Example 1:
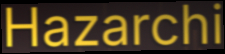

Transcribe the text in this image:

Hazarchi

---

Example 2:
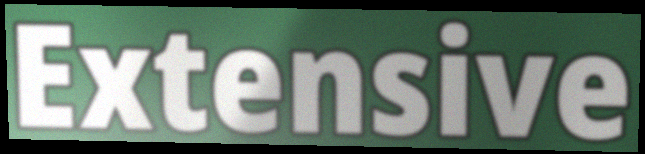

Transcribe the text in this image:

Extensive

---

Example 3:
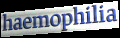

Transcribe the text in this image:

haemophilia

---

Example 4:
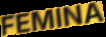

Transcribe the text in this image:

FEMINA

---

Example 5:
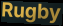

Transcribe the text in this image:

Rugby